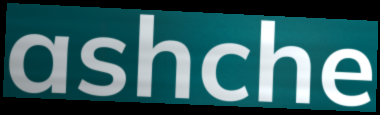
ashche